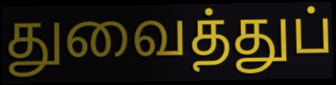
துவைத்துப்